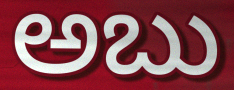
ಅಬು